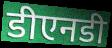
डीएनडी